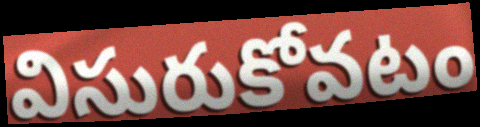
విసురుకోవటం